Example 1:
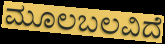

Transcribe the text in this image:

ಮೂಲಬಲವಿದೆ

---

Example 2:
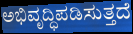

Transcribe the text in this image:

ಅಭಿವೃದ್ಧಿಪಡಿಸುತ್ತದೆ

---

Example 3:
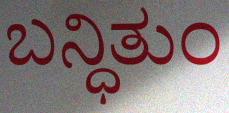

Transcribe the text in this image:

ಬನ್ಧಿತುಂ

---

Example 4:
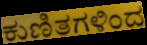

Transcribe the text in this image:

ಕುಣಿತಗಳಿಂದ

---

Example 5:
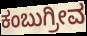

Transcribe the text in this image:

ಕಂಬುಗ್ರೀವ